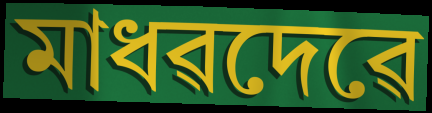
মাধৱদেৱে